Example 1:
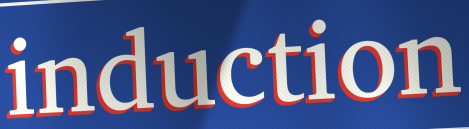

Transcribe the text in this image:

induction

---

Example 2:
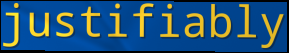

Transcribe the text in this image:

justifiably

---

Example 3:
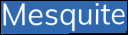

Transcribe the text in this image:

Mesquite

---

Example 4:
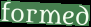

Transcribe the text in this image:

formed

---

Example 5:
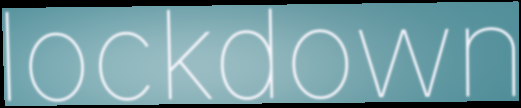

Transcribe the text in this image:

lockdown